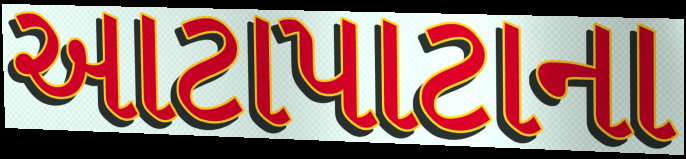
આટાપાટાના